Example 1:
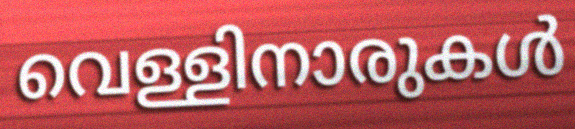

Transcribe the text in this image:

വെള്ളിനാരുകൾ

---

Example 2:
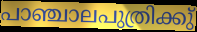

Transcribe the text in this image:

പാഞ്ചാലപുത്രിക്കു്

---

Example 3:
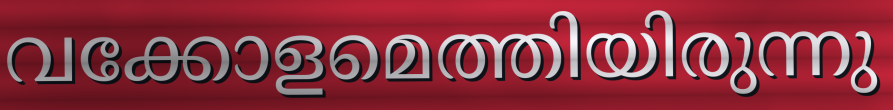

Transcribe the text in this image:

വക്കോളമെത്തിയിരുന്നു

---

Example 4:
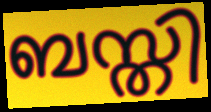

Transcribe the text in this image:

ബസ്തി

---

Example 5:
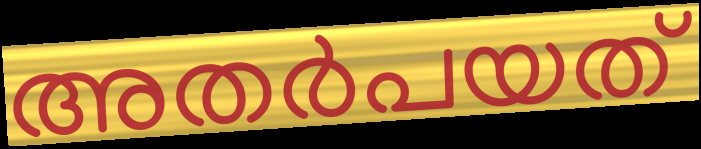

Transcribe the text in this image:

അതർപയത്